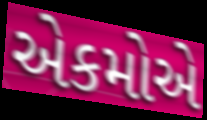
એકમોએ